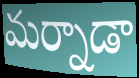
మర్నాడా